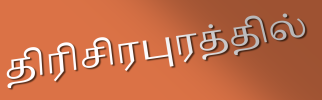
திரிசிரபுரத்தில்